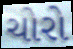
ચોરો